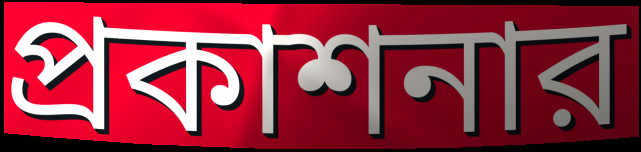
প্রকাশনার